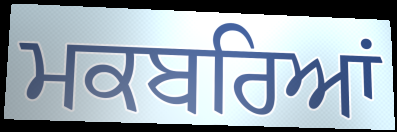
ਮਕਬਰਿਆਂ